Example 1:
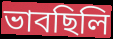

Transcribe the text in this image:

ভাবছিলি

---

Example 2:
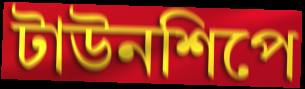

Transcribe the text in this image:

টাউনশিপে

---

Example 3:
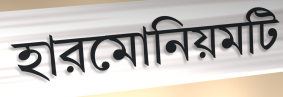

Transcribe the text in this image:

হারমোনিয়মটি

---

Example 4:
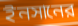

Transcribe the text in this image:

ইনসানের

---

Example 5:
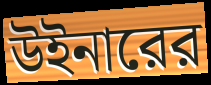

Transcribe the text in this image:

উইনারের